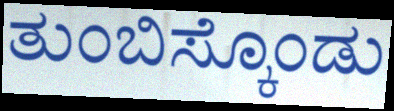
ತುಂಬಿಸ್ಕೊಂಡು